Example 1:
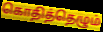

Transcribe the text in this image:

கொதித்தெழும்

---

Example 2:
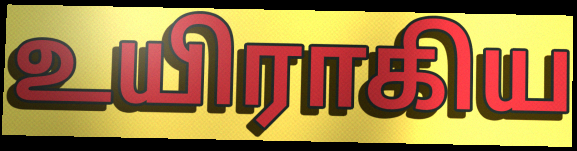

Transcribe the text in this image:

உயிராகிய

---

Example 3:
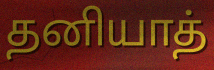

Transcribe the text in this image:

தனியாத்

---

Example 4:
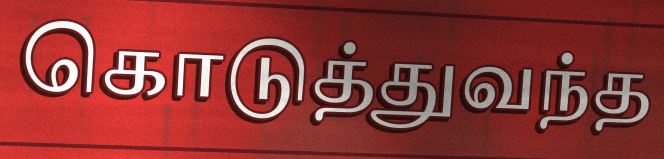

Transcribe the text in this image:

கொடுத்துவந்த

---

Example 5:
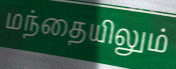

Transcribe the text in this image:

மந்தையிலும்